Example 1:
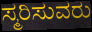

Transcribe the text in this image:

ಸ್ಮರಿಸುವರು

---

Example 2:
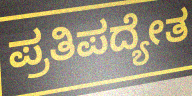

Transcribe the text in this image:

ಪ್ರತಿಪದ್ಯೇತ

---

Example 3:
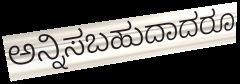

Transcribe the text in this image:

ಅನ್ನಿಸಬಹುದಾದರೂ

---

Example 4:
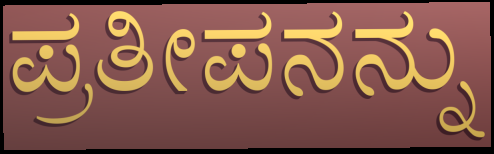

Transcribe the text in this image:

ಪ್ರತೀಪನನ್ನು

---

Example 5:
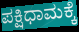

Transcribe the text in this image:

ಪಕ್ಷಿಧಾಮಕ್ಕೆ